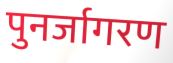
पुनर्जागरण